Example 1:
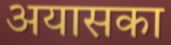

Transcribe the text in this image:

अयासका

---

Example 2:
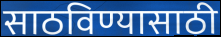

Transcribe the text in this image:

साठविण्यासाठी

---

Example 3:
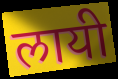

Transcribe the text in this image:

लायी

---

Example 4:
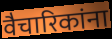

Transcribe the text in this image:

वैचारिकांना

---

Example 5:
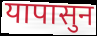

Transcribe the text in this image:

यापासुन